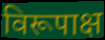
विरूपाक्ष